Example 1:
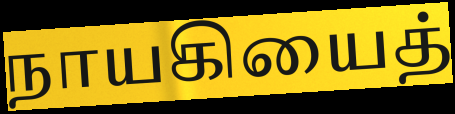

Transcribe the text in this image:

நாயகியைத்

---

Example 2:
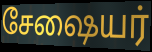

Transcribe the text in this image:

சேஷையர்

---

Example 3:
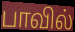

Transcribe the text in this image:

பாவில்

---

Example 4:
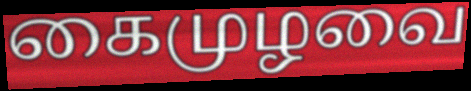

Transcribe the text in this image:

கைமுழவை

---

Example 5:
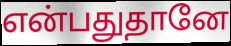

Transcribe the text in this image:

என்பதுதானே